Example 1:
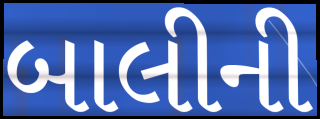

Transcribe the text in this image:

બાલીની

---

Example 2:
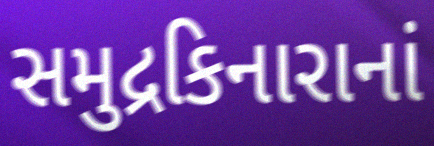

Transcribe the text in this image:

સમુદ્રકિનારાનાં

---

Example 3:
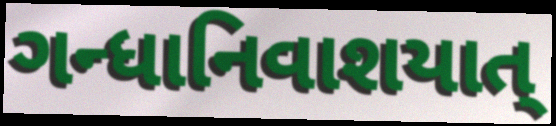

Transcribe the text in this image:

ગન્ધાનિવાશયાત્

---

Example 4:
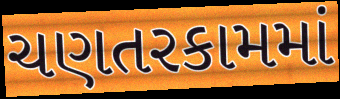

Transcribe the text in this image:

ચણતરકામમાં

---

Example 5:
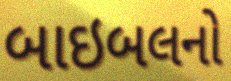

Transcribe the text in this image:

બાઇબલનો